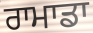
ਰਾਮਾਡਾ